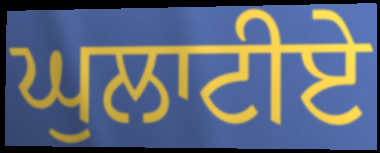
ਘੁਲਾਟੀਏ